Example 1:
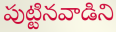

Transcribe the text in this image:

పుట్టినవాడిని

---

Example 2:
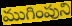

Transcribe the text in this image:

ముగింపుని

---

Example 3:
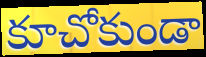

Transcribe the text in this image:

కూచోకుండా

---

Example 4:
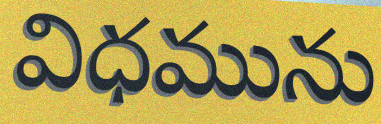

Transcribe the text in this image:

విధమును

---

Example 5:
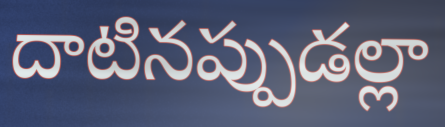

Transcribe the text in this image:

దాటినప్పుడల్లా